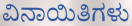
ವಿನಾಯಿತಿಗಳು